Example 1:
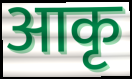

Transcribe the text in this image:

आकृ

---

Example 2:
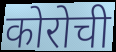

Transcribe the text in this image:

कोरोची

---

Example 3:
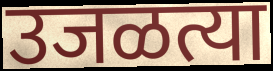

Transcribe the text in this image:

उजळत्या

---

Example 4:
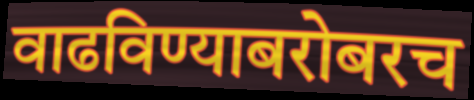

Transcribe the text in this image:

वाढविण्याबरोबरच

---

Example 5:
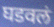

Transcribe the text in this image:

घडवलं